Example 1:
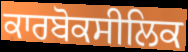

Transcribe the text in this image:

ਕਾਰਬੋਕਸੀਲਿਕ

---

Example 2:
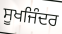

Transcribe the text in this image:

ਸੂਖਜਿੰਦਰ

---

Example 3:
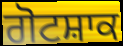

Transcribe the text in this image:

ਗੋਟਸ਼ਾਕ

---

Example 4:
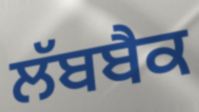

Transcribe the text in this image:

ਲੱਬਬੈਕ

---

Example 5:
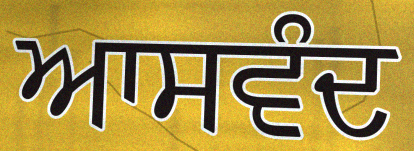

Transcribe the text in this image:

ਆਸਵੰਦ